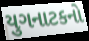
યુગનાટકનો